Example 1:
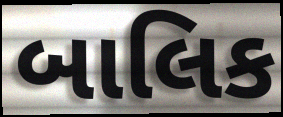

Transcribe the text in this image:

બાલિક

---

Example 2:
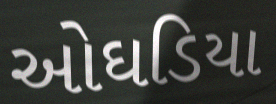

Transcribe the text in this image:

ઓઘડિયા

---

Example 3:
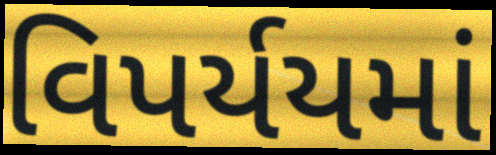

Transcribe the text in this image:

વિપર્યયમાં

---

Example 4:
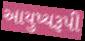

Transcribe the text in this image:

આયુષ્યરૂપી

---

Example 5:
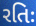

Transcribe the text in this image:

રતિઃ